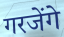
गरजेंगे